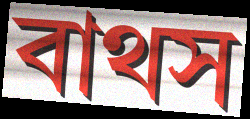
বাথস